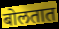
बोलतात